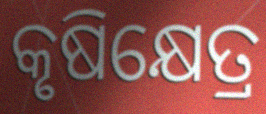
କୃଷିକ୍ଷେତ୍ର